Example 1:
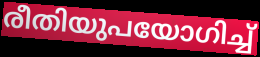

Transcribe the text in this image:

രീതിയുപയോഗിച്ച്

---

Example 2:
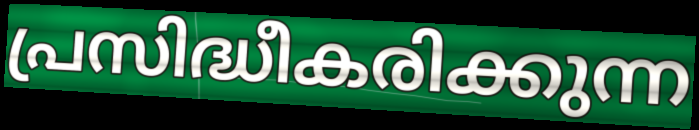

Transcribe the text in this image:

പ്രസിദ്ധീകരിക്കുന്ന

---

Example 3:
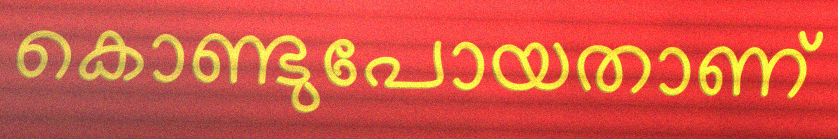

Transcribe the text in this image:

കൊണ്ടുപോയതാണ്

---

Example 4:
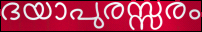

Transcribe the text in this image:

ദയാപുരസ്സരം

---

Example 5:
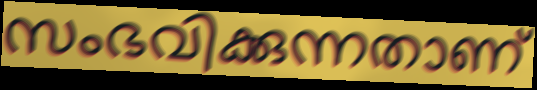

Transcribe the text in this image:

സംഭവിക്കുന്നതാണ്